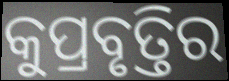
କୁପ୍ରବୃତ୍ତିର